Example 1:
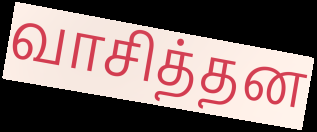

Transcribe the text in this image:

வாசித்தன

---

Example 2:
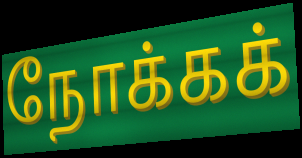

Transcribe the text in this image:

நோக்கக்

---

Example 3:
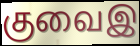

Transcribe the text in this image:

குவைஇ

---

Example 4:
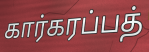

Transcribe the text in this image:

கார்கரப்பத்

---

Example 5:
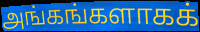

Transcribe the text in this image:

அங்கங்களாகக்